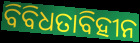
ବିବିଧତାବିହୀନ